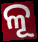
ଳୂ